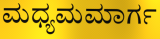
ಮಧ್ಯಮಮಾರ್ಗ